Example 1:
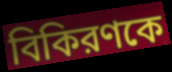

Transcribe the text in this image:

বিকিরণকে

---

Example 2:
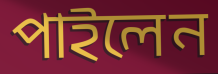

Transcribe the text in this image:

পাইলেন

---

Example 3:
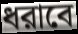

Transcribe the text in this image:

ধরাবে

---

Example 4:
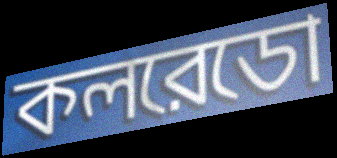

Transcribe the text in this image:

কলরেডো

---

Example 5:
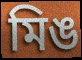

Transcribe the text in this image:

মিঙ